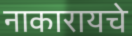
नाकारायचे